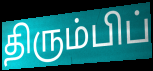
திரும்பிப்